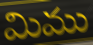
మిము